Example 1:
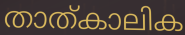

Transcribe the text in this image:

താത്കാലിക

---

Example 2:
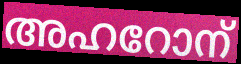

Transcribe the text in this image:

അഹറോന്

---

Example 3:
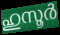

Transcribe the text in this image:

ഹുസൂർ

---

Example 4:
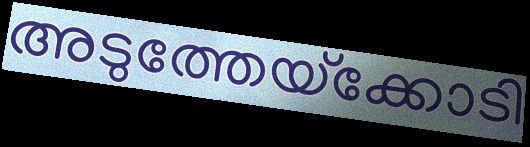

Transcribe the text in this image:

അടുത്തേയ്‌ക്കോടി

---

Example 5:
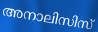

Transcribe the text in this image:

അനാലിസിസ്